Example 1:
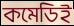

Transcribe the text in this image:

কমেডিই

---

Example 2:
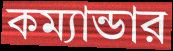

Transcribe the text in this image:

কম্যান্ডার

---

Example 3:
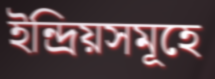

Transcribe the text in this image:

ইন্দ্রিয়সমূহে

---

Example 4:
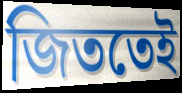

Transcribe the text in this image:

জিততেই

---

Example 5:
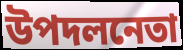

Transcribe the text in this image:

উপদলনেতা